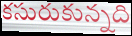
కసురుకున్నది